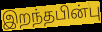
இறந்தபின்பு